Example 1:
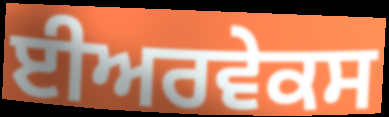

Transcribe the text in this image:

ਈਅਰਵੇਕਸ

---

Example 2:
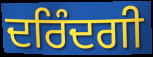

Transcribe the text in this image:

ਦਰਿੰਦਗੀ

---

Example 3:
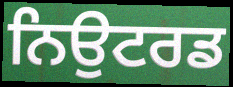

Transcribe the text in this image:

ਨਿਉਟਰਡ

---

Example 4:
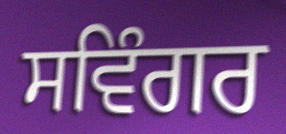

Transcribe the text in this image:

ਸਵਿੰਗਰ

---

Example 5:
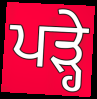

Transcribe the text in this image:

ਪੜ੍ਹੇ